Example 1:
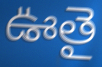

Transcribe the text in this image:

ఊతై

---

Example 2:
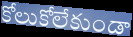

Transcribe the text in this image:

కోలుకోలేకుండా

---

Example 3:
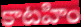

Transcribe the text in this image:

కాటహిం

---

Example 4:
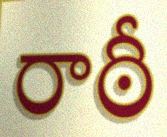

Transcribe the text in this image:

రాఠీ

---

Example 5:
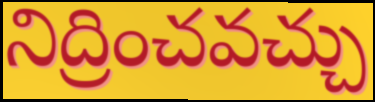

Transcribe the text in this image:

నిద్రించవచ్చు